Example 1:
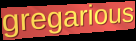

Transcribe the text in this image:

gregarious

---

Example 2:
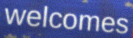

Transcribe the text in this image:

welcomes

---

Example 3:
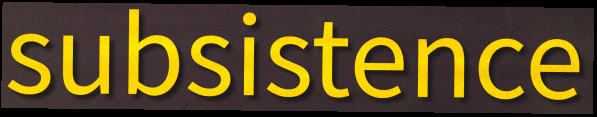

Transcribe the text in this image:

subsistence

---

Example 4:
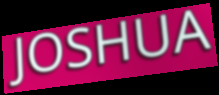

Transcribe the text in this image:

JOSHUA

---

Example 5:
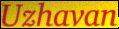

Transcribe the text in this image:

Uzhavan